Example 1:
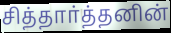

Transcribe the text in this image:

சித்தார்த்தனின்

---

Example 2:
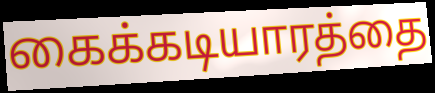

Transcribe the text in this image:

கைக்கடியாரத்தை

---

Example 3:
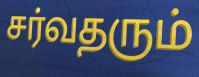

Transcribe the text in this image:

சர்வதரும்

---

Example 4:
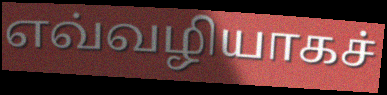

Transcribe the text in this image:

எவ்வழியாகச்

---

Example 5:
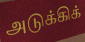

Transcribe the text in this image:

அடுக்கிக்